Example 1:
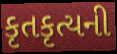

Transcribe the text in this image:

કૃતકૃત્યની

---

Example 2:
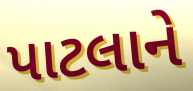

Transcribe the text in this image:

પાટલાને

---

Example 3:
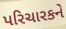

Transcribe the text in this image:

પરિચારકને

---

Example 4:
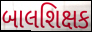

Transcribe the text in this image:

બાલશિક્ષક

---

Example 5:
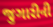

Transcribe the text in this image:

જુગારીની